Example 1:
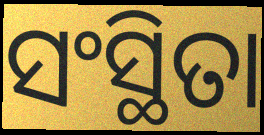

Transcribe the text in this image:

ସଂସ୍ଥିତା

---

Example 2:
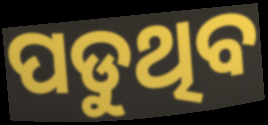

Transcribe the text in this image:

ପଡୁଥିବ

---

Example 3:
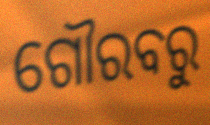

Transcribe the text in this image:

ଗୌରବରୁ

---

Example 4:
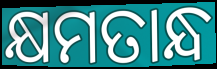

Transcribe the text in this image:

କ୍ଷମତାନ୍ଧ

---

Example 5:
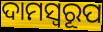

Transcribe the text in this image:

ଦାମସ୍ୱରୂପ